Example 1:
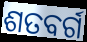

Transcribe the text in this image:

ଶତବର୍ଗ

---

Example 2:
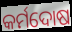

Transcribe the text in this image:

କର୍ମଦୋଷ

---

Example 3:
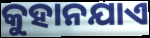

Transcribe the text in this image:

କୁହାନଯାଏ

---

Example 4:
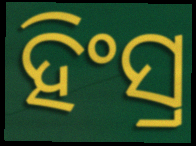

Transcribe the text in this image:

ହିଂସ୍ର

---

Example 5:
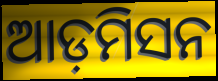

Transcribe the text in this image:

ଆଡ଼ମିସନ